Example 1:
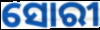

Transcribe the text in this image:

ସୋରୀ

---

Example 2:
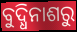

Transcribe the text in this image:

ବୁଦ୍ଧିନାଶରୁ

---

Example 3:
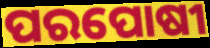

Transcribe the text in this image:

ପରପୋଷୀ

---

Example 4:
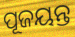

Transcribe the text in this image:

ପୂଜୟନ୍ତ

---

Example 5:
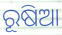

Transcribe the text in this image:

ରୂଷିଆ